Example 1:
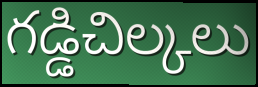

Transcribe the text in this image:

గడ్డిచిల్కలు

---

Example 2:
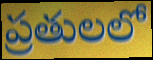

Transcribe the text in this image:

ప్రతులలో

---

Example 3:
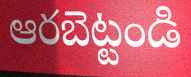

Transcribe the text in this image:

ఆరబెట్టండి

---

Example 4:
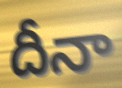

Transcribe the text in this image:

దీనా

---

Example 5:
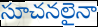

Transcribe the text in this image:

సూచనలైనా